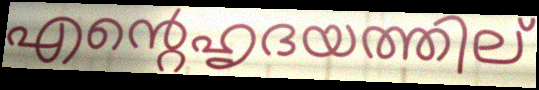
എന്റെഹൃദയത്തില്